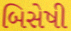
બિસેષી